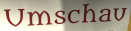
Umschau